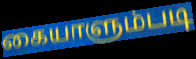
கையாளும்படி